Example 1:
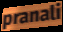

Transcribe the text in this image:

pranali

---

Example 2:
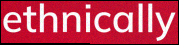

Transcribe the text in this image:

ethnically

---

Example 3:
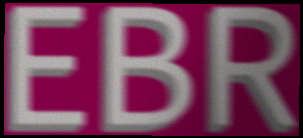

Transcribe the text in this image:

EBR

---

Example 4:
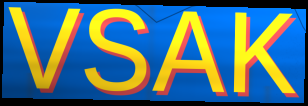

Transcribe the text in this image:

VSAK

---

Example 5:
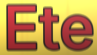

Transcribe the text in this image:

Ete